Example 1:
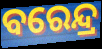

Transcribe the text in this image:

ବରେନ୍ଦ୍ର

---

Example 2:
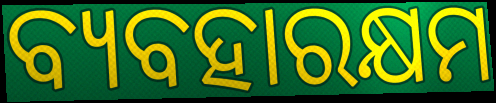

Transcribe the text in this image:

ବ୍ୟବହାରକ୍ଷମ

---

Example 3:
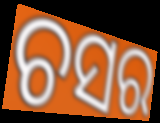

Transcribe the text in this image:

ଚସର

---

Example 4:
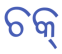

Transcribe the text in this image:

ଚକ୍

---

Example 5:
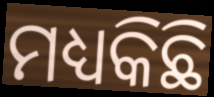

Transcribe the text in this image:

ମଧ୍ୟକିଛି